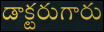
డాక్టరుగారు